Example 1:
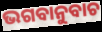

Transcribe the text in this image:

ଭଗବାନୁବାଚ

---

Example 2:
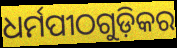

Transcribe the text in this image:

ଧର୍ମପୀଠଗୁଡ଼ିକର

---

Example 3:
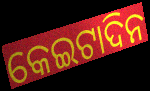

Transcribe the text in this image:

କେଇଟାଦିନ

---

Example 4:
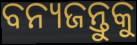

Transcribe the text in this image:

ବନ୍ୟଜନ୍ତୁକୁ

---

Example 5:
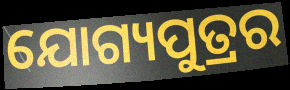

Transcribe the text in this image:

ଯୋଗ୍ୟପୁତ୍ରର